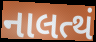
નાલત્થં